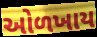
ઓળખાય